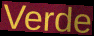
Verde